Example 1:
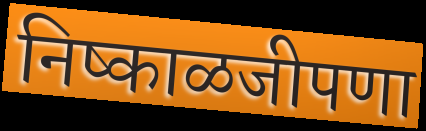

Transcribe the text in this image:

निष्काळजीपणा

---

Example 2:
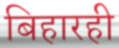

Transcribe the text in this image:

बिहारही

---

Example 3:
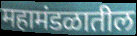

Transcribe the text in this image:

महामंडळातील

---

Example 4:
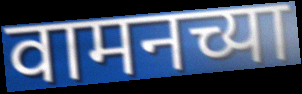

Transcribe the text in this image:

वामनच्या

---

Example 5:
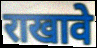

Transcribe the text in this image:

राखावे